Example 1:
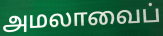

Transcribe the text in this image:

அமலாவைப்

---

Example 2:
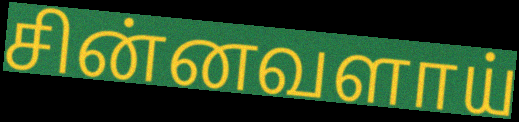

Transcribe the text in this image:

சின்னவளாய்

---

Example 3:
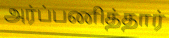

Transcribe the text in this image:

அர்ப்பணித்தார்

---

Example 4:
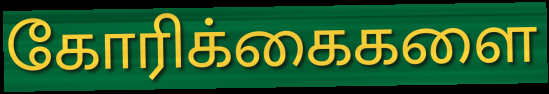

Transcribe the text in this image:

கோரிக்கைகளை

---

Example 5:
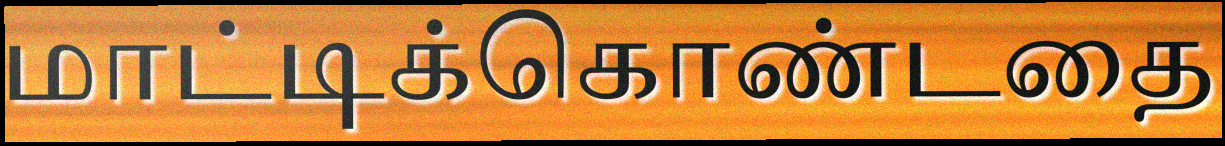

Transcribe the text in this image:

மாட்டிக்கொண்டதை